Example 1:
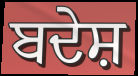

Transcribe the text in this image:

ਬਦੇਸ਼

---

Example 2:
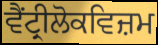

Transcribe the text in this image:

ਵੈਂਟ੍ਰੀਲੋਕਵਿਜ਼ਮ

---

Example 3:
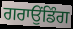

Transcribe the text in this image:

ਗਰਾਉਂਡਿੰਗ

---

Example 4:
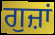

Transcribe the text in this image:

ਗੁਜ਼ਾਂ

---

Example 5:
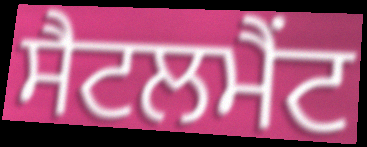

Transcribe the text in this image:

ਸੈਟਲਮੈਂਟ